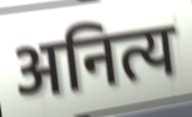
अनित्य